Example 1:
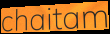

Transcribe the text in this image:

chaitam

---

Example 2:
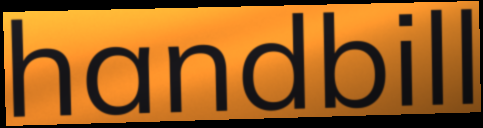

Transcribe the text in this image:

handbill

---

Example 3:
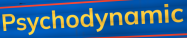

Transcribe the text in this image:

Psychodynamic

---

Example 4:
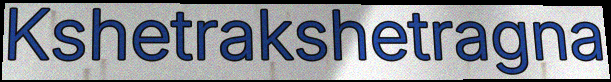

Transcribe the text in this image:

Kshetrakshetragna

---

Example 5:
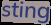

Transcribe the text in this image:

sting